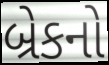
બ્રેકનો